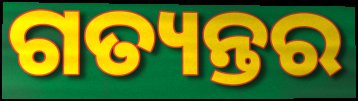
ଗତ୍ୟନ୍ତର